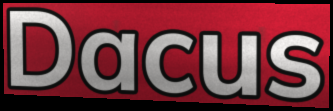
Dacus